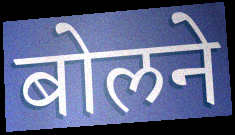
बोलने